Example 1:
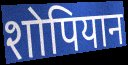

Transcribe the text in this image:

शोपियान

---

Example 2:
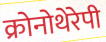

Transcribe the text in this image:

क्रोनोथेरेपी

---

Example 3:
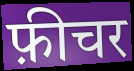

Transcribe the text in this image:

फ़ीचर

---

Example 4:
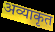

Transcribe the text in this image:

अव्याकृत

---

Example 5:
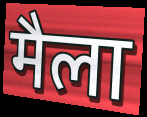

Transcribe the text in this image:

मैला